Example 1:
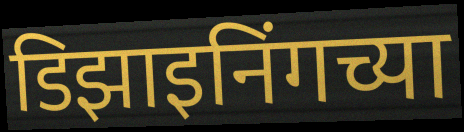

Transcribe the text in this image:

डिझाइनिंगच्या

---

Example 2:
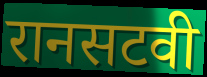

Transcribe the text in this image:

रानसटवी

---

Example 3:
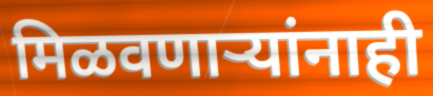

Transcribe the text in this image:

मिळवणाऱ्यांनाही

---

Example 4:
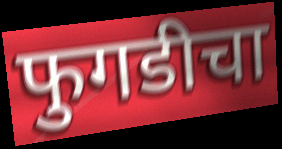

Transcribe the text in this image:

फुगडीचा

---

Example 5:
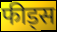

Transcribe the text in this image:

फीड्स